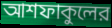
আশফাকুলের